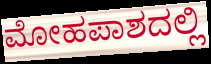
ಮೋಹಪಾಶದಲ್ಲಿ